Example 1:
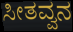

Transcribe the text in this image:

ಸೀತವ್ವನ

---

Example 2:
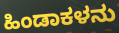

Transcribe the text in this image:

ಹಿಂಡಾಕಳನು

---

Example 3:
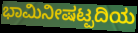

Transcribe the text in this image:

ಭಾಮಿನೀಷಟ್ಪದಿಯ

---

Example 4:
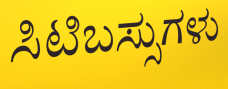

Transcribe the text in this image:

ಸಿಟಿಬಸ್ಸುಗಳು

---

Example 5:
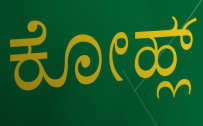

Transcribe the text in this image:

ಕೋಹ್ಲ್